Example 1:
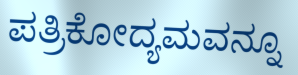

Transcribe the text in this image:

ಪತ್ರಿಕೋದ್ಯಮವನ್ನೂ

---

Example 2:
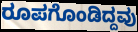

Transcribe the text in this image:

ರೂಪಗೊಂಡಿದ್ದವು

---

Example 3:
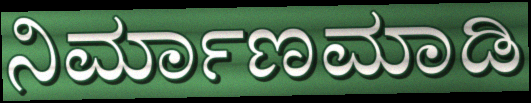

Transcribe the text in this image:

ನಿರ್ಮಾಣಮಾಡಿ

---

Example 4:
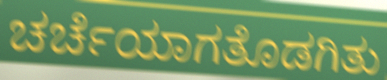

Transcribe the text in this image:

ಚರ್ಚೆಯಾಗತೊಡಗಿತು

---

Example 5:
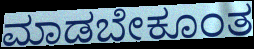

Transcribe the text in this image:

ಮಾಡಬೇಕೂಂತ